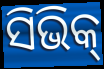
ସିଭିକ୍